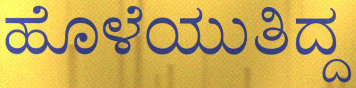
ಹೊಳೆಯುತಿದ್ದ